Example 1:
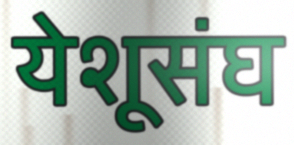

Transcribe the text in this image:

येशूसंघ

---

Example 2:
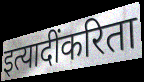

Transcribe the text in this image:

इत्यादींकरिता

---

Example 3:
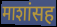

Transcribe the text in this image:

माशांसह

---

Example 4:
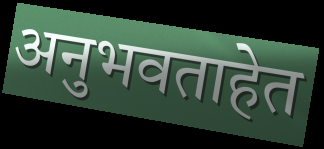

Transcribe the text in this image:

अनुभवताहेत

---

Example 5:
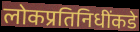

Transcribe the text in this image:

लोकप्रतिनिधींकडे